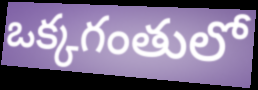
ఒక్కగంతులో